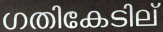
ഗതികേടില്